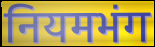
नियमभंग